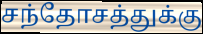
சந்தோசத்துக்கு